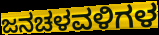
ಜನಚಳವಳಿಗಳ